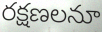
రక్షణలనూ